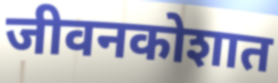
जीवनकोशात